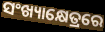
ସଂଖ୍ୟାକ୍ଷେତ୍ରରେ